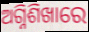
ଅଗ୍ନିଶିଖାରେ